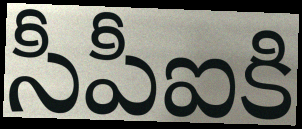
సీపీఐకి